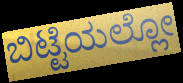
ಬಿಟ್ಟೆಯಲ್ಲೋ